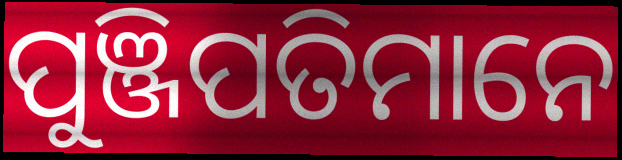
ପୁଞ୍ଜିପତିମାନେ